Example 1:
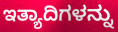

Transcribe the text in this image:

ಇತ್ಯಾದಿಗಳನ್ನು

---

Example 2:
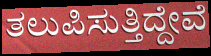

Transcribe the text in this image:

ತಲುಪಿಸುತ್ತಿದ್ದೇವೆ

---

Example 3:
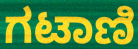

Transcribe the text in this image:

ಗಟಾಣಿ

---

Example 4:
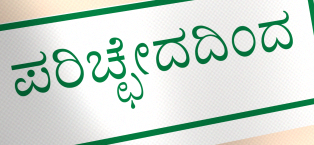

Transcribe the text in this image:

ಪರಿಚ್ಛೇದದಿಂದ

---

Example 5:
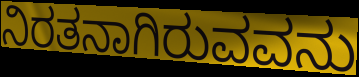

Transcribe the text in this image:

ನಿರತನಾಗಿರುವವನು